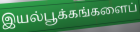
இயல்பூக்கங்களைப்